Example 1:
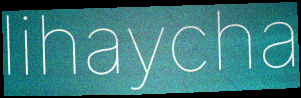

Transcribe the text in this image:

lihaycha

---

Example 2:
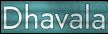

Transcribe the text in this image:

Dhavala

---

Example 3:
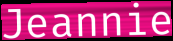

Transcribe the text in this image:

Jeannie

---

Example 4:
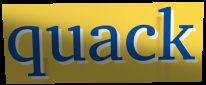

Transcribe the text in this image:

quack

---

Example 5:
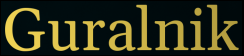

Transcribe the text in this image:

Guralnik